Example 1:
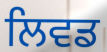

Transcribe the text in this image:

ਲਿਵਡ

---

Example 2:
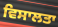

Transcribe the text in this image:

ਵਿਸਾਲਤਾ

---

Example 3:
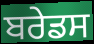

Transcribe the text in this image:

ਬਰੇਡਸ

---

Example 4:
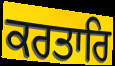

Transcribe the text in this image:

ਕਰਤਾਰਿ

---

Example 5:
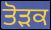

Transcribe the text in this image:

ਤੋੜਕ